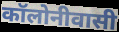
कॉलोनीवासी